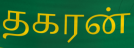
தகரன்